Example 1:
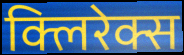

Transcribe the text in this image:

क्लिरेक्स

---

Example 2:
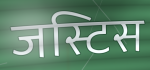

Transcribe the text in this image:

जस्‍टिस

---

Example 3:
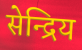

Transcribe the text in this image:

सेन्द्रिय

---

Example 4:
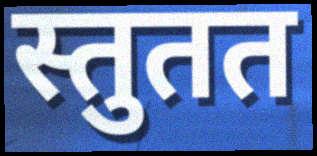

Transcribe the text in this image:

स्तुतत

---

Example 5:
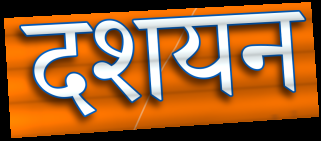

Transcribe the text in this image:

दशयन